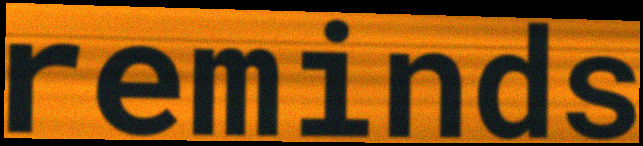
reminds